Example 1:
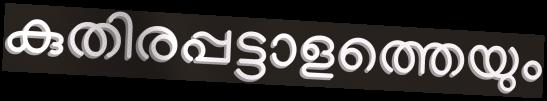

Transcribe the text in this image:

കുതിരപ്പട്ടാളത്തെയും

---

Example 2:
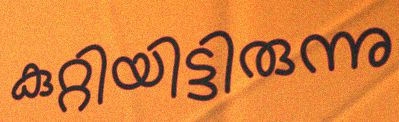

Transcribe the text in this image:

കുറ്റിയിട്ടിരുന്നു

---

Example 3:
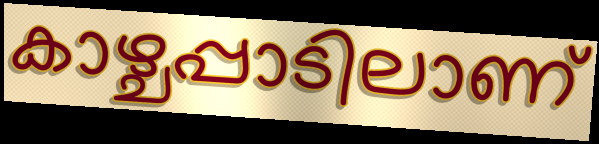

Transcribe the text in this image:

കാഴ്ചപ്പാടിലാണ്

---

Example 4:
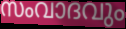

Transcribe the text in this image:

സംവാദവും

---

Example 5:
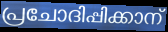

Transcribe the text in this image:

പ്രചോദിപ്പിക്കാന്